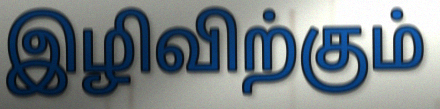
இழிவிற்கும்